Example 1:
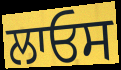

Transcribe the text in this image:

ਲਾਓਸ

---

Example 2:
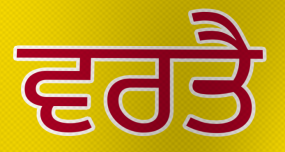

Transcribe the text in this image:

ਵਰਤੈ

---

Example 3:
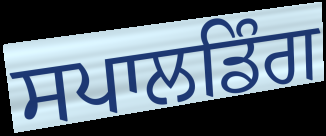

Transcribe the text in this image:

ਸਪਾਲਡਿੰਗ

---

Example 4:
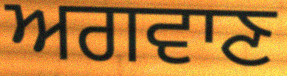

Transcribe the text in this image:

ਅਗਵਾਣ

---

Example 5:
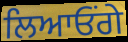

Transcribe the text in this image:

ਲਿਆਓਂਗੇ